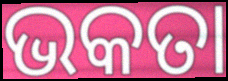
ଭକତା